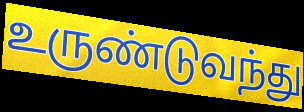
உருண்டுவந்து